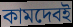
কামদেবই